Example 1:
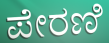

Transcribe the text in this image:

ಪೇರಣಿ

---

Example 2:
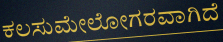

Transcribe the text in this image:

ಕಲಸುಮೇಲೋಗರವಾಗಿದೆ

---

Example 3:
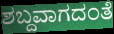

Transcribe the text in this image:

ಶಬ್ದವಾಗದಂತೆ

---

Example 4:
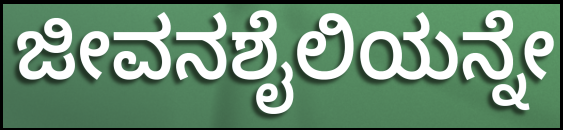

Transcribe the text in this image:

ಜೀವನಶೈಲಿಯನ್ನೇ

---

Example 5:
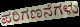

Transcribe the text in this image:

ಪರಿಗಣನೆಗಳು